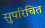
सुपरिचित